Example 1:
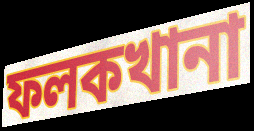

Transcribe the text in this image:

ফলকখানা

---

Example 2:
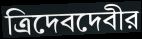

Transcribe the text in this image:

ত্রিদেবদেবীর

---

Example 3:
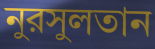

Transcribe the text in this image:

নুরসুলতান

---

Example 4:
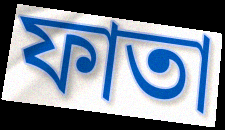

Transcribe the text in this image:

ফাতা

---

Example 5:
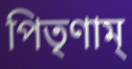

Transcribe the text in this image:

পিতৃণাম্